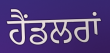
ਹੈਂਡਲਰਾਂ